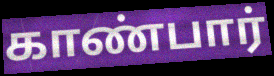
காண்பார்